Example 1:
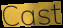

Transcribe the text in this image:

Cast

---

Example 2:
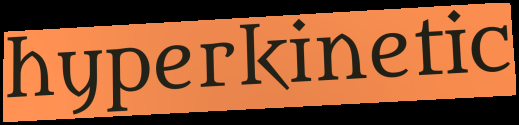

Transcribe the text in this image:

hyperkinetic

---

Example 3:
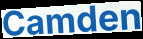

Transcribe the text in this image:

Camden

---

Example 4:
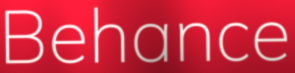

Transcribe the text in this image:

Behance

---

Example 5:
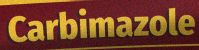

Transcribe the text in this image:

Carbimazole